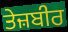
ਤੇਜ਼ਬੀਰ